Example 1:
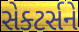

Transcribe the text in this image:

સેક્ટર્સને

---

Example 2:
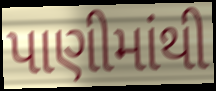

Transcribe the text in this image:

પાણીમાંથી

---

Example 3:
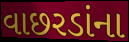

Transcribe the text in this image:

વાછરડાંના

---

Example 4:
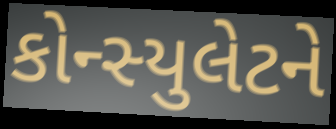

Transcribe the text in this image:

કોન્સ્યુલેટને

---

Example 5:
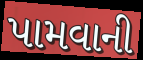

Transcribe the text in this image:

પામવાની